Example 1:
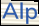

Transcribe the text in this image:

Alp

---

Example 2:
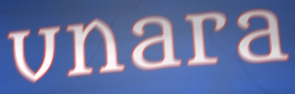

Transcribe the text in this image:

unara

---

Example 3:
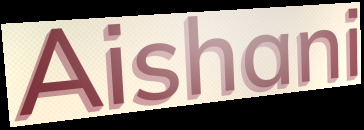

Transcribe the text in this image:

Aishani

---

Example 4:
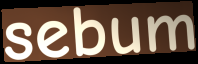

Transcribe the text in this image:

sebum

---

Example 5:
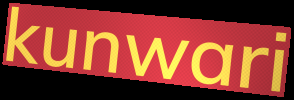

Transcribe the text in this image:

kunwari